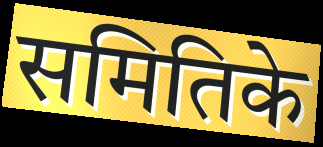
समितिके